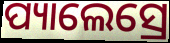
ପ୍ୟାଲେସ୍ରେ